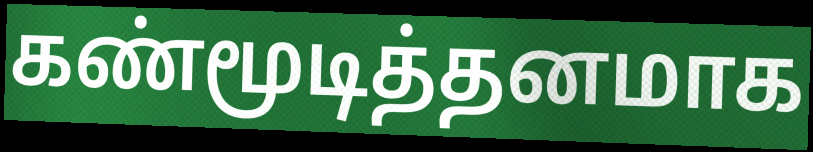
கண்மூடித்தனமாக